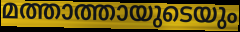
മത്താത്തായുടെയും